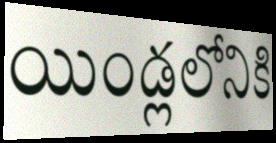
యిండ్లలోనికి